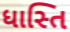
ધાસ્તિ